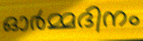
ഓർമ്മദിനം